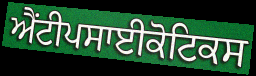
ਐਂਟੀਪਸਾਈਕੋਟਿਕਸ